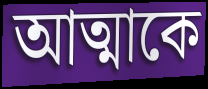
আত্মাকে